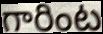
గారింట